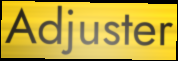
Adjuster